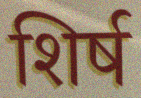
शिर्ष